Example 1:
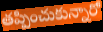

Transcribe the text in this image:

తప్పించుకున్నారో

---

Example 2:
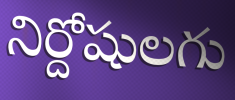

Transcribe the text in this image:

నిర్దోషులగు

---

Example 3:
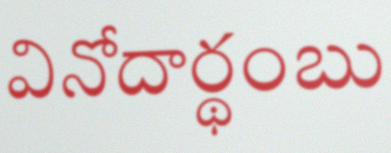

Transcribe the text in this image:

వినోదార్థంబు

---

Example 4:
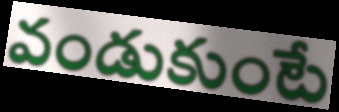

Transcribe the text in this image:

వండుకుంటే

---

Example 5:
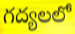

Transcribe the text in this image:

గద్యలలో